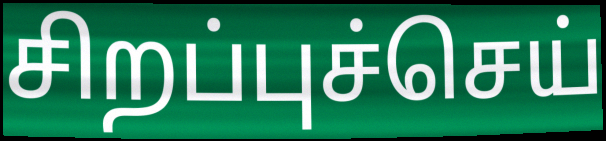
சிறப்புச்செய்